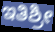
ಇತಿಶ್ರೀ